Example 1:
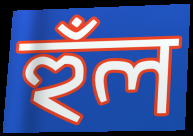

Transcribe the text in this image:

হুঁল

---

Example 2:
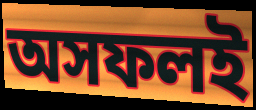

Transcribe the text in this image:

অসফলই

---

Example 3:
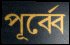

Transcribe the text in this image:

পূর্ব্বে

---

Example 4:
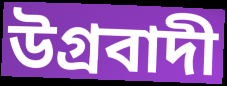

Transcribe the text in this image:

উগ্রবাদী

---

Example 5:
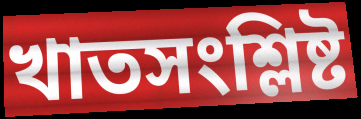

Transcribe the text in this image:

খাতসংশ্লিষ্ট